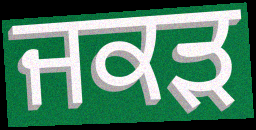
ਜਕਡ਼